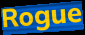
Rogue